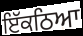
ਇੱਕਠਿਆ